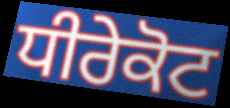
ਧੀਰੇਕੋਟ